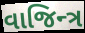
વાજિન્ત્ર